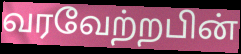
வரவேற்றபின்